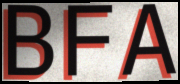
BFA